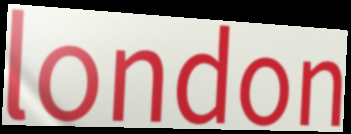
london